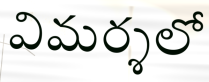
విమర్శలో